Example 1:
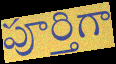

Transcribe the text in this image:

పూర్తిగా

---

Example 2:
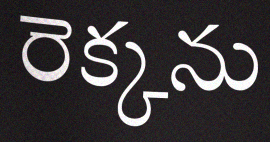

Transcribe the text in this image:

రెక్కను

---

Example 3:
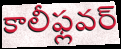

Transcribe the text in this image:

కాలీఫ్లవర్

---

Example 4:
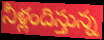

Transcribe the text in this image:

నీళ్లందిస్తున్న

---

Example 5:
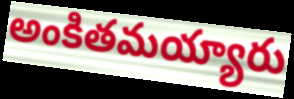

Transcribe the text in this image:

అంకితమయ్యారు